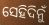
ସେହିଦିନୁଁ